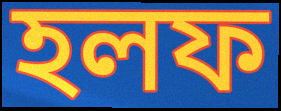
হলফ